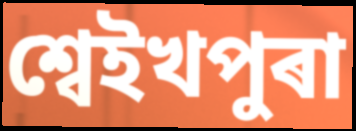
শ্বেইখপুৰা